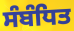
ਸੰਬੰਧਿਤ